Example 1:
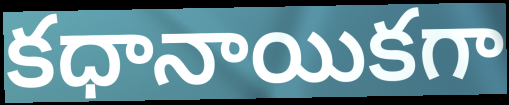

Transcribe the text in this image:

కధానాయికగా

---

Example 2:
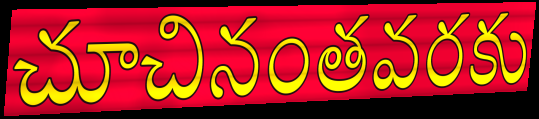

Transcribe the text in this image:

చూచినంతవరకు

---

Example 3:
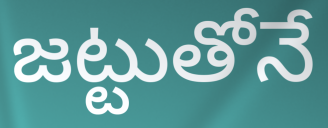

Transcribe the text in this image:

జట్టుతోనే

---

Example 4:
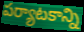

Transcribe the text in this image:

పర్యాటకాన్ని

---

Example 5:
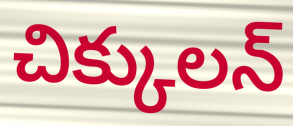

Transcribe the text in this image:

చిక్కులన్